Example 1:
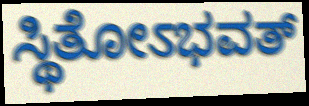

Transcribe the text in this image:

ಸ್ಥಿತೋಽಭವತ್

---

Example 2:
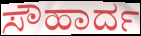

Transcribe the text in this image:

ಸೌಹಾರ್ದ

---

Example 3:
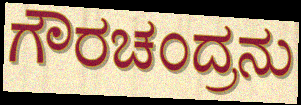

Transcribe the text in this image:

ಗೌರಚಂದ್ರನು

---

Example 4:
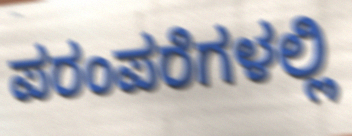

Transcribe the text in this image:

ಪರಂಪರೆಗಳಲ್ಲಿ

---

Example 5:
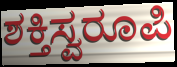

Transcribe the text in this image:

ಶಕ್ತಿಸ್ವರೂಪಿ